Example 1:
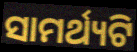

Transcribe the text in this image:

ସାମର୍ଥ୍ୟଟି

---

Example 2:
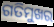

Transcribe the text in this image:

ଗତିମୁଖର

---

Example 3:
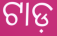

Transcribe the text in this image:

ଟାଡ଼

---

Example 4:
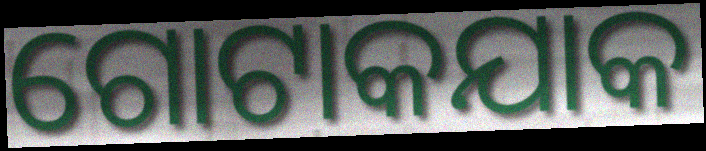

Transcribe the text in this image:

ଗୋଟାକଯାକ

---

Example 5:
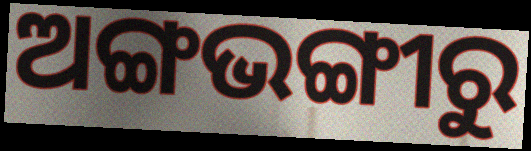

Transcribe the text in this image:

ଅଙ୍ଗଭଙ୍ଗୀରୁ